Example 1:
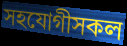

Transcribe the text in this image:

সহযোগীসকল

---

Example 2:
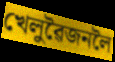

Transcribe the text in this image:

খেলুৱৈজনলৈ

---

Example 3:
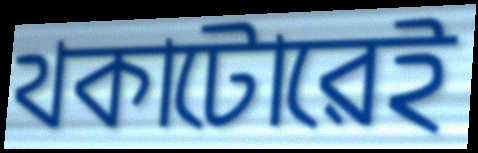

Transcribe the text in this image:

থকাটোৱেই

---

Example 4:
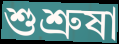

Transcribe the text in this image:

শুশ্ৰুষা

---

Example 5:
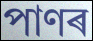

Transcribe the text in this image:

পাণৰ